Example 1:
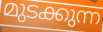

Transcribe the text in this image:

മുടക്കുന്ന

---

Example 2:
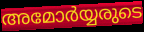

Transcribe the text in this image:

അമോർയ്യരുടെ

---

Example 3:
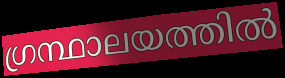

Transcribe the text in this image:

ഗ്രന്ഥാലയത്തിൽ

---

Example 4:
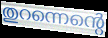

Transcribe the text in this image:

തുറന്നെന്റെ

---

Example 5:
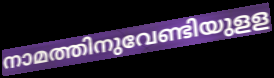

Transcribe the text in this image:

നാമത്തിനുവേണ്ടിയുളള